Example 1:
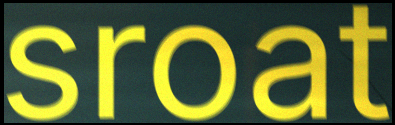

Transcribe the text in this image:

sroat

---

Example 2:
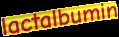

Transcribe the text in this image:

lactalbumin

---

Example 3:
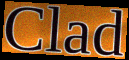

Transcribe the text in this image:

Clad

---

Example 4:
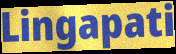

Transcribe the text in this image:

Lingapati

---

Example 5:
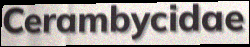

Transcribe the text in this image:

Cerambycidae